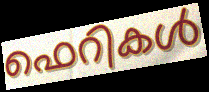
ഫെറികൾ